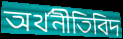
অৰ্থনীতিবিদ